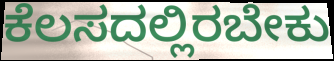
ಕೆಲಸದಲ್ಲಿರಬೇಕು